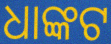
ଧାଙ୍କଟ